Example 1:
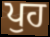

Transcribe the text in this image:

ਪੁਹ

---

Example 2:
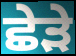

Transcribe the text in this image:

ਛੇੜੇ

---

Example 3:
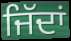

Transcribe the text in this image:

ਜਿੱਦਾਂ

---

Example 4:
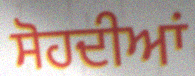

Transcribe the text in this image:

ਸੋਹਦੀਆਂ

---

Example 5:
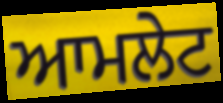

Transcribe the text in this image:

ਆਮਲੇਟ